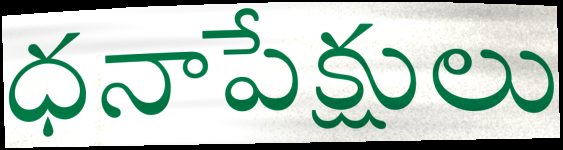
ధనాపేక్షులు